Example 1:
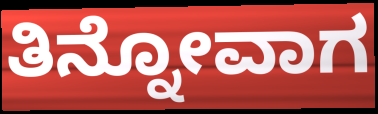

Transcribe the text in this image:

ತಿನ್ನೋವಾಗ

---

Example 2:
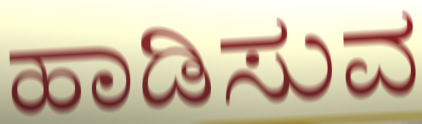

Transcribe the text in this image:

ಹಾಡಿಸುವ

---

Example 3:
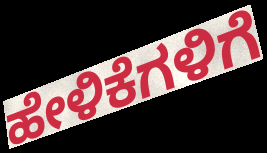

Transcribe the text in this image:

ಹೇಳಿಕೆಗಳಿಗೆ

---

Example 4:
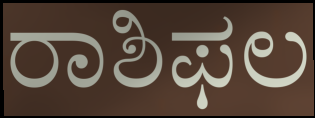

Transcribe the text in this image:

ರಾಶಿಫಲ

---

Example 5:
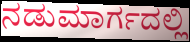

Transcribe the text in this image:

ನಡುಮಾರ್ಗದಲ್ಲಿ